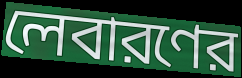
লেবারণের